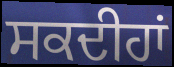
ਸਕਦੀਹਾਂ